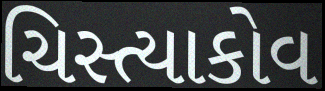
ચિસ્ત્યાકોવ